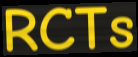
RCTs